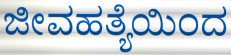
ಜೀವಹತ್ಯೆಯಿಂದ